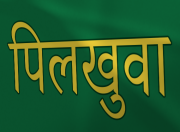
पिलखुवा